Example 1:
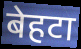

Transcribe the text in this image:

बेहटा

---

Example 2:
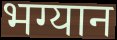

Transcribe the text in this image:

भग्यान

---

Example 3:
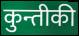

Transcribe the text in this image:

कुन्तीकी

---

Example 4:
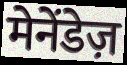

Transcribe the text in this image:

मेनेंडेज़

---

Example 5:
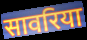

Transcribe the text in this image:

सावरिया